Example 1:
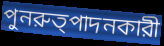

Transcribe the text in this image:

পুনরুত্পাদনকারী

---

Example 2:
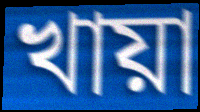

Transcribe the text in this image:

খায়া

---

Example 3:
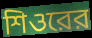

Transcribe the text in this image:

শিওরের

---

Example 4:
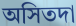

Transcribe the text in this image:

অসিতদা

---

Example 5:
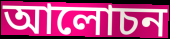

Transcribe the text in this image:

আলোচন